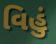
વિહું